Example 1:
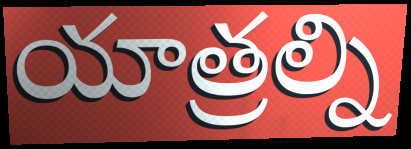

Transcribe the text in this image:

యాత్రల్ని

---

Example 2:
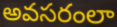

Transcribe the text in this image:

అవసరంలా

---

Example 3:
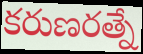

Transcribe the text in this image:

కరుణరత్నే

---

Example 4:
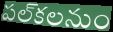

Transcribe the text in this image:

పల్‌కలనుం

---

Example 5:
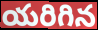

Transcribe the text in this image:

యరిగిన